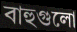
বাহুগুলো